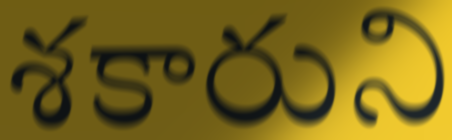
శకారుని